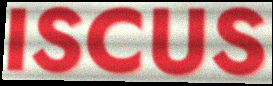
ISCUS